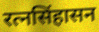
रत्नसिंहासन